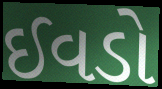
ઈવડો